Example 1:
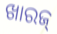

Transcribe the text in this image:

ଖାରଜ୍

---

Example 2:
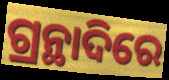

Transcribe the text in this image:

ଗ୍ରନ୍ଥାଦିରେ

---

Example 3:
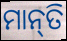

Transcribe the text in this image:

ମାନ୍‌ତି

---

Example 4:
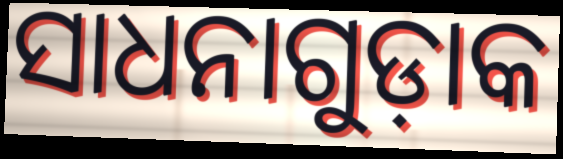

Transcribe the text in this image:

ସାଧନାଗୁଡ଼ାକ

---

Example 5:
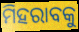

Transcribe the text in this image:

ମିହରାବକୁ